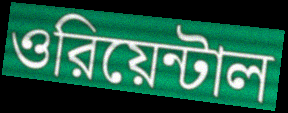
ওরিয়েন্টাল